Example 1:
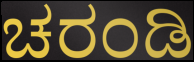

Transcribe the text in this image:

ಚರಂಡಿ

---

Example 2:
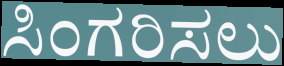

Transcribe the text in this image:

ಸಿಂಗರಿಸಲು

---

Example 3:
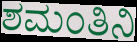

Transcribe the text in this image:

ಶಮಂತಿನಿ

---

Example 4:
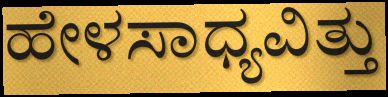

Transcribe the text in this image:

ಹೇಳಸಾಧ್ಯವಿತ್ತು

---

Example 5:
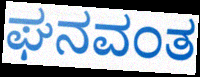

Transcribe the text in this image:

ಘನವಂತ